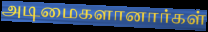
அடிமைகளானார்கள்